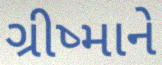
ગ્રીષ્માને